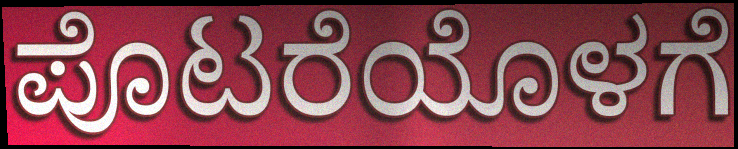
ಪೊಟರೆಯೊಳಗೆ